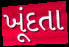
ખૂંદતા